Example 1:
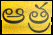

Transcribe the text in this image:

ఆత్ర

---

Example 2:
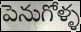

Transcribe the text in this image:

పెనుగోళ్ళ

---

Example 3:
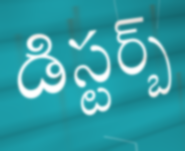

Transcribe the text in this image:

డిస్టర్బ్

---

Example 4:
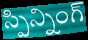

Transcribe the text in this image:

స్పిన్నింగ్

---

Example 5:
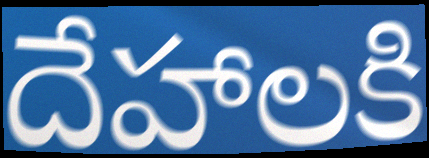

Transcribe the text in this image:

దేహాలకి